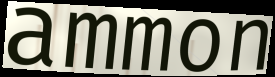
ammon